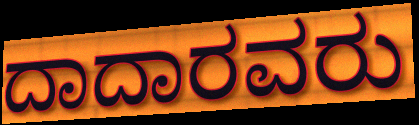
ದಾದಾರವರು